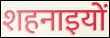
शहनाइयों